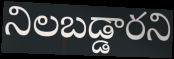
నిలబడ్డారని